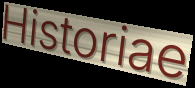
Historiae